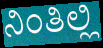
ನಿಂತಿಲ್ಲಿ